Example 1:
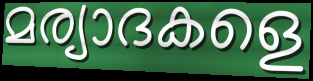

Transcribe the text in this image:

മര്യാദകളെ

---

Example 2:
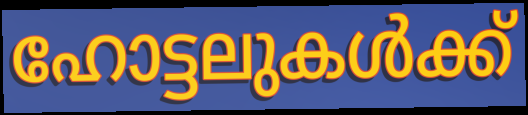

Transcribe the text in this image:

ഹോട്ടലുകൾക്ക്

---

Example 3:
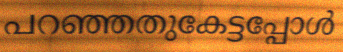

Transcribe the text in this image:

പറഞ്ഞതുകേട്ടപ്പോൾ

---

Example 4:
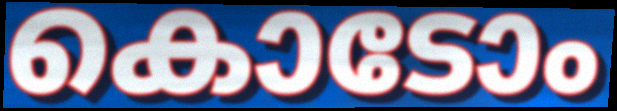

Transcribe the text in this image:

കൊടോം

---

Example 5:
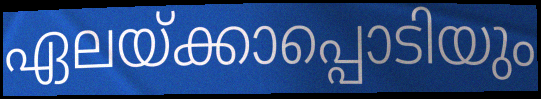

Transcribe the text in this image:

ഏലയ്ക്കാപ്പൊടിയും